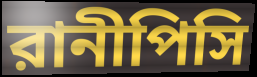
রানীপিসি